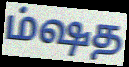
ம்ஷத